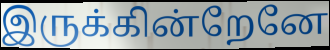
இருக்கின்றேனே